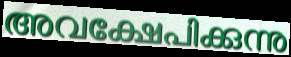
അവക്ഷേപിക്കുന്നു